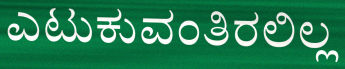
ಎಟುಕುವಂತಿರಲಿಲ್ಲ